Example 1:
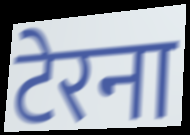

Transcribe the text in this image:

टेरना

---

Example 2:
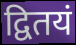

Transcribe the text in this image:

द्वितयं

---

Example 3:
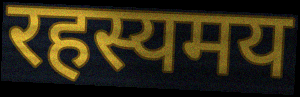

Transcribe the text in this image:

रहस्यमय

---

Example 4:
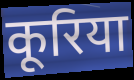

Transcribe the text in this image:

कूरिया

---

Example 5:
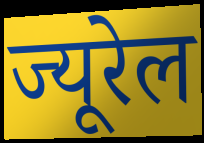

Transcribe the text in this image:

ज्यूरेल